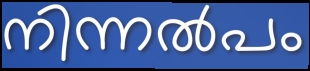
നിന്നൽപം